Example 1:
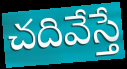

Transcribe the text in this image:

చదివేస్తే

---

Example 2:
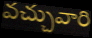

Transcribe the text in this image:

వచ్చువారి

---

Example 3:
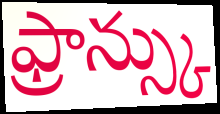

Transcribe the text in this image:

ఫ్రాన్స్కు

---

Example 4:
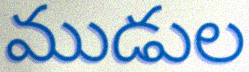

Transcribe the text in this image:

ముడుల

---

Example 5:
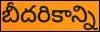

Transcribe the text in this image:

బీదరికాన్ని